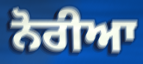
ਨੋਰੀਆ